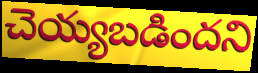
చెయ్యబడిందని